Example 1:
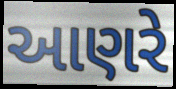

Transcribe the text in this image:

આણરે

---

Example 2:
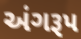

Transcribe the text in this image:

અંગરૂપ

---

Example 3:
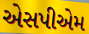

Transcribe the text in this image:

એસપીએમ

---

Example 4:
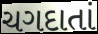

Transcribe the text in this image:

ચગદાતાં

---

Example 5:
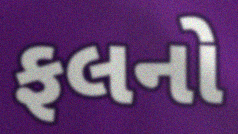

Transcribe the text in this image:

ફલનો